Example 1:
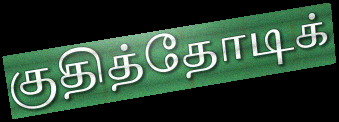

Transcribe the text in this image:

குதித்தோடிக்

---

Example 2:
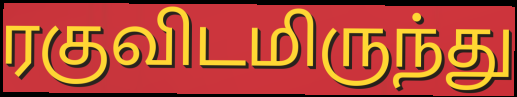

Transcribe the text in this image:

ரகுவிடமிருந்து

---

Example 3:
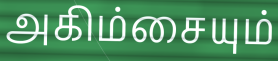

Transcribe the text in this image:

அகிம்சையும்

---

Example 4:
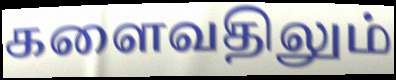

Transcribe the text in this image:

களைவதிலும்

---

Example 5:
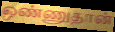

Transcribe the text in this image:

ஒண்ணுதான்